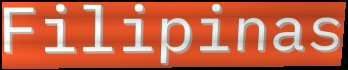
Filipinas